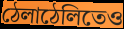
ঠেলাঠেলিতেও